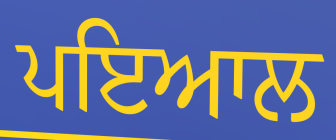
ਪਇਆਲ